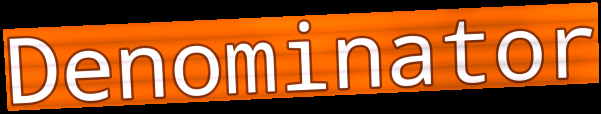
Denominator